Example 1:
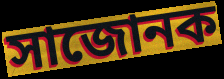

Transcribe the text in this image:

সাজোনক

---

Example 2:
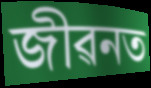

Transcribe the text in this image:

জীৱনত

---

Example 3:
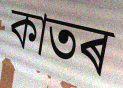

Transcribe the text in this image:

কাতৰ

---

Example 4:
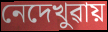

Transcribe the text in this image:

নেদেখুৱায়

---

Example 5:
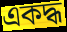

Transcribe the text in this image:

একদ্ধ